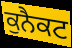
ਕੁਨੈਕਟ